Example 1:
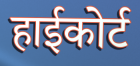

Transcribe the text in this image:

हाईकोर्ट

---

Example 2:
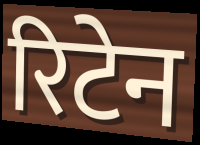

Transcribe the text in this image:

रिटेन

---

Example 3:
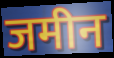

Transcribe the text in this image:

जमीन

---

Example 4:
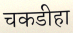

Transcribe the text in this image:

चकडीहा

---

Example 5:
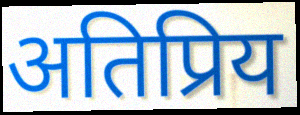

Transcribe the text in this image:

अतिप्रिय